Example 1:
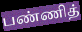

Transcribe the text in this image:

பண்ணித்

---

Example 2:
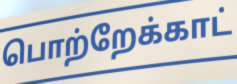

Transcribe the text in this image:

பொற்றேக்காட்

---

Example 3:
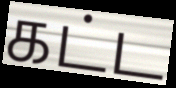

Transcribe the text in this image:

கட்ட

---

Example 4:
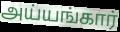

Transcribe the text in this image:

அய்யங்கார்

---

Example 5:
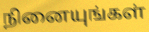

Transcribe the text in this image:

நினையுங்கள்